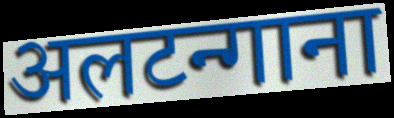
अलटन्गाना